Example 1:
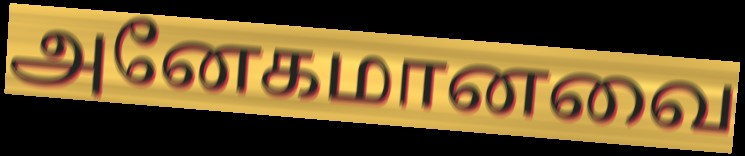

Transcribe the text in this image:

அனேகமானவை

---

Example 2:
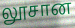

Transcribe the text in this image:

லூசான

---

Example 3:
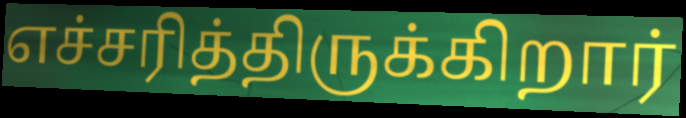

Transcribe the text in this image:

எச்சரித்திருக்கிறார்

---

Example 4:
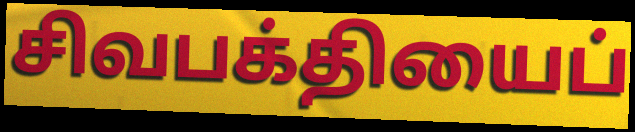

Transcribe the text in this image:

சிவபக்தியைப்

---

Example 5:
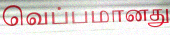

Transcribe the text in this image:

வெப்பமானது